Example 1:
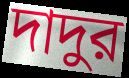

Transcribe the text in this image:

দাদুর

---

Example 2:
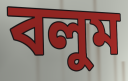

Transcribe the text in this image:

বলুম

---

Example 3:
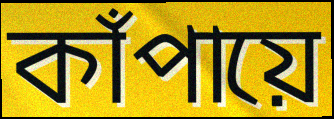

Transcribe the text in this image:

কাঁপায়ে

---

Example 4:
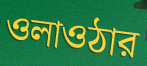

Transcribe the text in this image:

ওলাওঠার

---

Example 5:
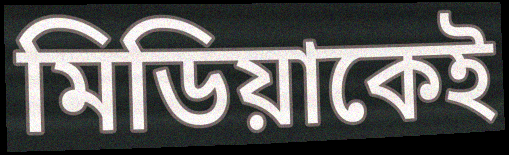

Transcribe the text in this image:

মিডিয়াকেই